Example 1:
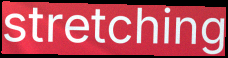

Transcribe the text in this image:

stretching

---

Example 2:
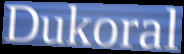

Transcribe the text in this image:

Dukoral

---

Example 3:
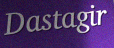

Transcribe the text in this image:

Dastagir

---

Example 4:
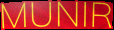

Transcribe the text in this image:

MUNIR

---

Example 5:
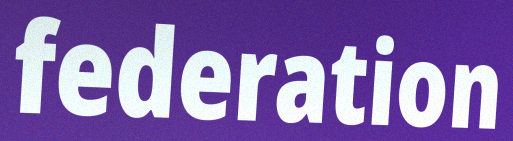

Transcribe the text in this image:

federation